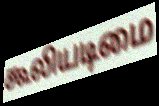
கூலியடிமை